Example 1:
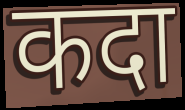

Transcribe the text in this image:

कदा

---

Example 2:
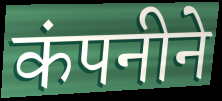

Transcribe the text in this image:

कंपनीने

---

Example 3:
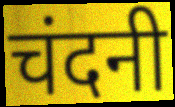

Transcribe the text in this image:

चंदनी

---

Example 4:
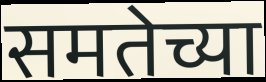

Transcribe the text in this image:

समतेच्या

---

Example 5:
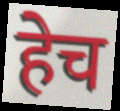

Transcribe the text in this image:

हेच